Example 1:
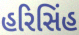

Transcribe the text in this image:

હરિસિંહ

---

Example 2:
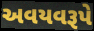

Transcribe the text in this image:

અવયવરૂપે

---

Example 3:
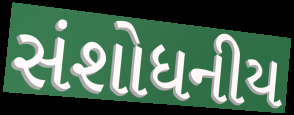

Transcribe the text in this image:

સંશોધનીય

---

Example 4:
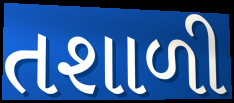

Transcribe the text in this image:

તશાળી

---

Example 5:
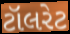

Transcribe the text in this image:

ટૉલરેટ